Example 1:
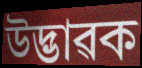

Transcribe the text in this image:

উদ্ভাৱক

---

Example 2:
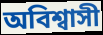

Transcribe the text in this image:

অবিশ্বাসী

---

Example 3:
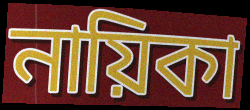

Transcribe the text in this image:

নায়িকা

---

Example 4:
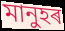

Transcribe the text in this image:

মানুহৰ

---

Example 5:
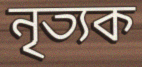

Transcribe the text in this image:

নৃত্যক